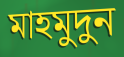
মাহমুদুন